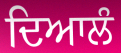
ਦਿਆਲੰ